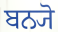
ਬਨ੍ਯੋ